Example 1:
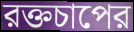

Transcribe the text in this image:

রক্তচাপের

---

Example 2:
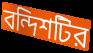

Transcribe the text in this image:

বন্দিশটির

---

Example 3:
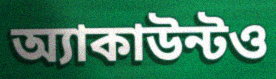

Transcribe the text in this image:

অ্যাকাউন্টও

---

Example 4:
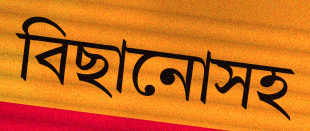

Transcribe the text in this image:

বিছানোসহ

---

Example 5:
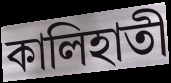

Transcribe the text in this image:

কালিহাতী